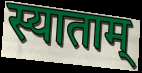
स्याताम्